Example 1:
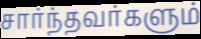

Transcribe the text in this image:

சார்ந்தவர்களும்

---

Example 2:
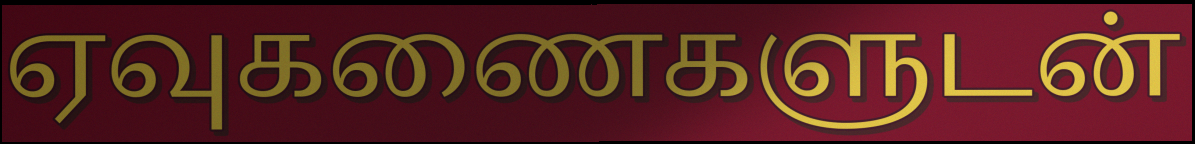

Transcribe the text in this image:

ஏவுகணைகளுடன்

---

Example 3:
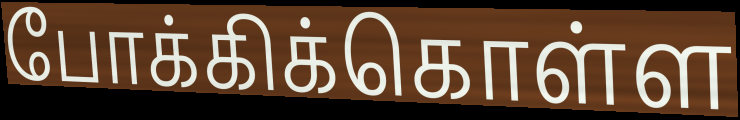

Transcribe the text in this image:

போக்கிக்கொள்ள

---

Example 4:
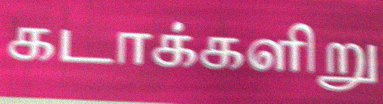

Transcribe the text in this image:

கடாக்களிறு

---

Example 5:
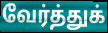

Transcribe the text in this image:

வேர்த்துக்